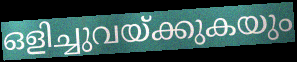
ഒളിച്ചുവയ്ക്കുകയും